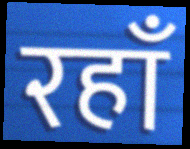
रहाँ